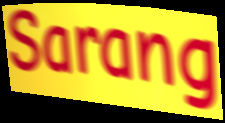
Sarang